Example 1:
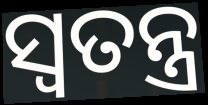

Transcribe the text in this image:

ସ୍ୱତନ୍ତ୍ର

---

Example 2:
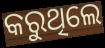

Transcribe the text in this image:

କରୁଥିଲେ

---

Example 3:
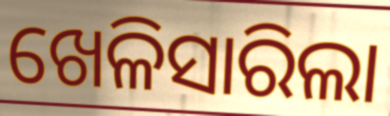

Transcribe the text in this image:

ଖେଳିସାରିଲା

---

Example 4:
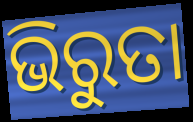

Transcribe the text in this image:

ଭିରୁତା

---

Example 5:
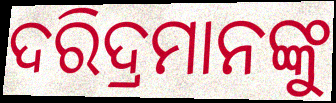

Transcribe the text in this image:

ଦରିଦ୍ରମାନଙ୍କୁ